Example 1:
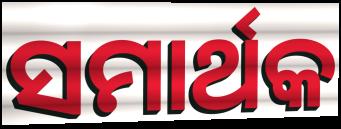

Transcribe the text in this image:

ସମାର୍ଥକ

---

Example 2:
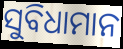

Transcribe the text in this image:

ସୁବିଧାମାନ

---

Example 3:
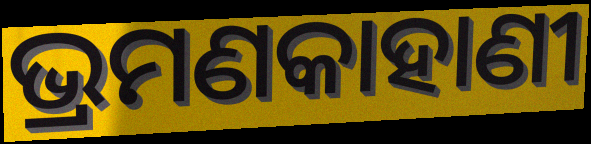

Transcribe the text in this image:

ଭ୍ରମଣକାହାଣୀ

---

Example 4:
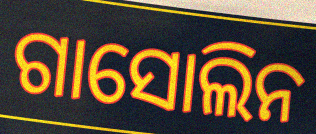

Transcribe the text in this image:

ଗାସୋଲିନ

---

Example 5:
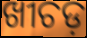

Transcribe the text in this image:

ଖୀଚଡ଼